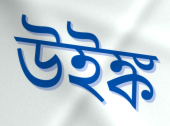
উইঙ্ক